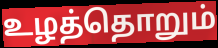
உழத்தொறும்